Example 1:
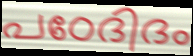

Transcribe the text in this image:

പഠേദിദം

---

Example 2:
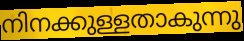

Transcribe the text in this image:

നിനക്കുള്ളതാകുന്നു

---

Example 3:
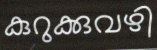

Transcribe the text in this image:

കുറുക്കുവഴി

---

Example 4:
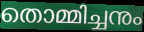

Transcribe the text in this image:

തൊമ്മിച്ചനും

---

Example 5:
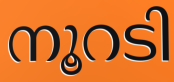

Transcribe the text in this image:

നൂറടി